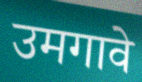
उमगावे